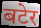
बटेर